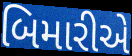
બિમારીએ